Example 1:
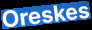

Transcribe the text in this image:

Oreskes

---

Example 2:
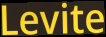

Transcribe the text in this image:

Levite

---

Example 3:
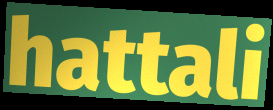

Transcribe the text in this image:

hattali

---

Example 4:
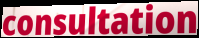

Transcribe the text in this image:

consultation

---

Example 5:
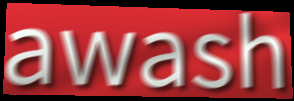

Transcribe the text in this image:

awash